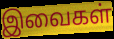
இவைகள்